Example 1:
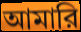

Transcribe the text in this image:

আমারি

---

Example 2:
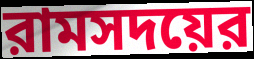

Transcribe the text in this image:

রামসদয়ের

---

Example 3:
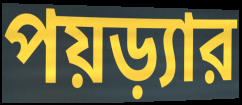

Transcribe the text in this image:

পয়ড়্যার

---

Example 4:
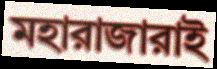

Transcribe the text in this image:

মহারাজারাই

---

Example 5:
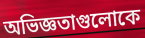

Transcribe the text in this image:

অভিজ্ঞতাগুলোকে